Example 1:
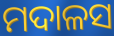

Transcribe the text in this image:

ମଦାଳସ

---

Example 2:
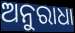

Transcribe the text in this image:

ଅନୁରାଧା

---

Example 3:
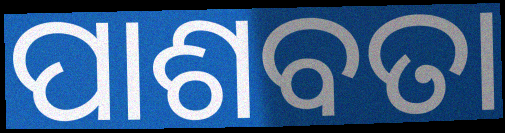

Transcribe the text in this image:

ପାଶବତା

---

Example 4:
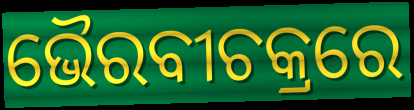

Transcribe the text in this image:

ଭୈରବୀଚକ୍ରରେ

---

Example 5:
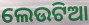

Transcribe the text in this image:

ଲେଉଟିଆ